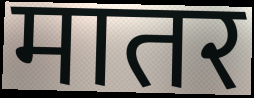
मातर